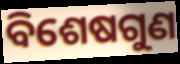
ବିଶେଷଗୁଣ